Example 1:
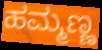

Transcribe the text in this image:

ಹಮ್ಮಣ್ಣ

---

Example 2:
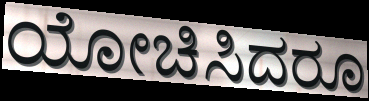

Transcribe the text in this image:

ಯೋಚಿಸಿದರೂ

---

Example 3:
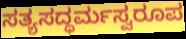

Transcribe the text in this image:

ಸತ್ಯಸದ್ಧರ್ಮಸ್ವರೂಪ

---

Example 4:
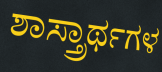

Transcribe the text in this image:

ಶಾಸ್ತ್ರಾರ್ಥಗಳ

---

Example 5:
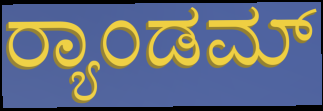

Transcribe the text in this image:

ರ್‍ಯಾಂಡಮ್